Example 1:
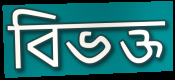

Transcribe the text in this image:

বিভক্ত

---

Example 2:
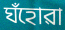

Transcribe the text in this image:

ঘঁহোৱা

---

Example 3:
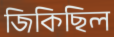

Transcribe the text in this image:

জিকিছিল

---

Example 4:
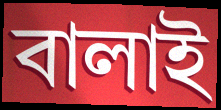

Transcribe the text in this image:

বালাই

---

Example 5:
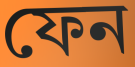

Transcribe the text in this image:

ফেন